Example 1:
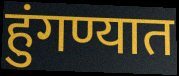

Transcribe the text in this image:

हुंगण्यात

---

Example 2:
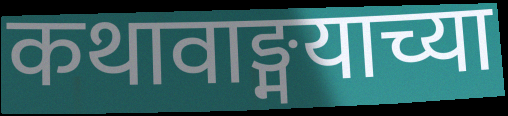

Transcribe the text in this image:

कथावाङ्मयाच्या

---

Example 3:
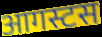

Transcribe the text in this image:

आगस्टस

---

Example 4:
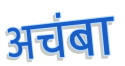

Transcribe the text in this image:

अचंबा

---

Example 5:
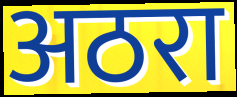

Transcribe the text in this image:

अठरा